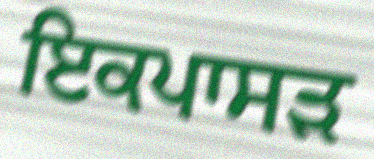
ਇਕਪਾਸੜ